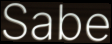
Sabe